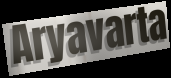
Aryavarta